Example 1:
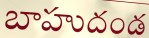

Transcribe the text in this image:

బాహుదండ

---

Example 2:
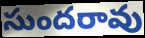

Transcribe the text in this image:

సుందరావు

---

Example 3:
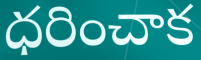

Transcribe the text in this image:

ధరించాక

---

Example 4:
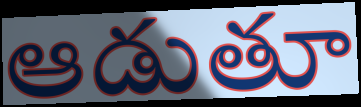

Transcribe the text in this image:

ఆడుతూ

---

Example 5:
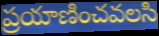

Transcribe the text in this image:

ప్రయాణించవలసి